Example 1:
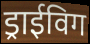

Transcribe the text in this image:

ड्राईविग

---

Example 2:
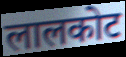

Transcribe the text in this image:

लालकोट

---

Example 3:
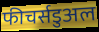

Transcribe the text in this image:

फीचर्सडुअल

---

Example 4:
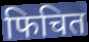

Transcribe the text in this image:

फिचित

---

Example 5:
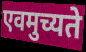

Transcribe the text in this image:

एवमुच्यते